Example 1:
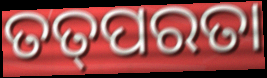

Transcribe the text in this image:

ତତ୍‌ପରତା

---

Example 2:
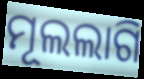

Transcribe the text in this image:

ମୂଲଲାଗି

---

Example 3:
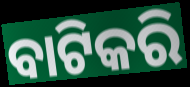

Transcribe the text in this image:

ବାଟିକରି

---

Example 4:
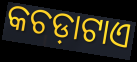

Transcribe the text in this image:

କଚଡ଼ାଟାଏ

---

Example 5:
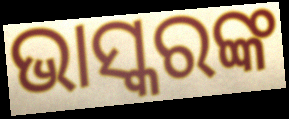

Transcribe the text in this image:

ଭାସ୍କରଙ୍କ